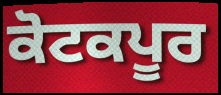
ਕੋਟਕਪੂਰ